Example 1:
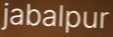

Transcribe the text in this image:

jabalpur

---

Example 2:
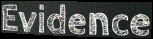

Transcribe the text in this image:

Evidence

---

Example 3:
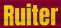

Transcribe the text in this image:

Ruiter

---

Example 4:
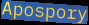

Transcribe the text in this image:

Apospory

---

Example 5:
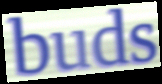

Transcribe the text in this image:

buds